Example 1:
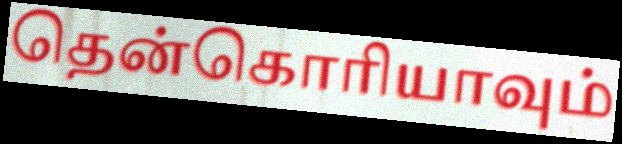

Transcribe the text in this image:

தென்கொரியாவும்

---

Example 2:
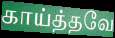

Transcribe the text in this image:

காய்த்தவே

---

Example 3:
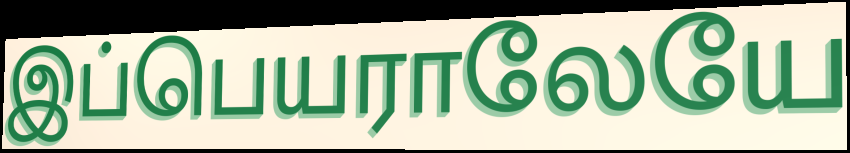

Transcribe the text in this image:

இப்பெயராலேயே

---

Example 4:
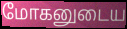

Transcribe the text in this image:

மோகனுடைய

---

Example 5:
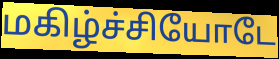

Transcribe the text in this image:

மகிழ்ச்சியோடே